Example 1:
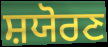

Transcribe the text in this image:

ਸ਼ਯੋਰਣ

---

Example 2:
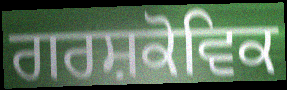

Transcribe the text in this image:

ਗਰਸ਼ਕੋਵਿਕ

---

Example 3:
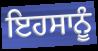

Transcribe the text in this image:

ਇਹਸਾਨੂੰ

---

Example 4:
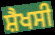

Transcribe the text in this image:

ਸ਼ੈਖਸੀ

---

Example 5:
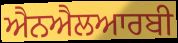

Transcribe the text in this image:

ਐਨਐਲਆਰਬੀ